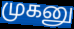
முகனு